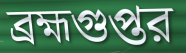
ব্রহ্মগুপ্তর